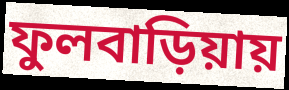
ফুলবাড়িয়ায়